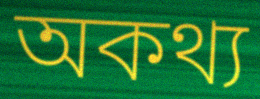
অকথ্য